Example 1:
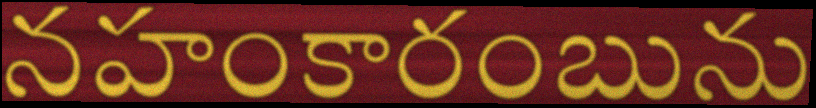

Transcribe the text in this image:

నహంకారంబును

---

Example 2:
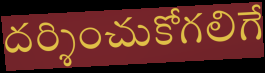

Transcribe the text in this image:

దర్శించుకోగలిగే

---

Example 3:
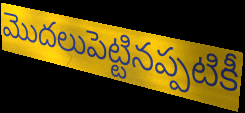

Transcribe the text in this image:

మొదలుపెట్టినప్పటికీ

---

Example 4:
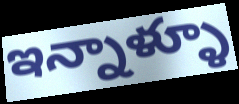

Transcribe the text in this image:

ఇన్నాళ్ళూ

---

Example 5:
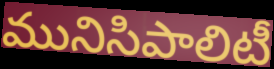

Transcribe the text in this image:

మునిసిపాలిటీ